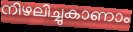
നിഴലിച്ചുകാണാം